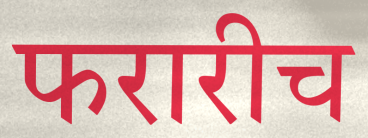
फरारीच